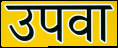
उपवा